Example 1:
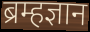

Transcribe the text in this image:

ब्रम्हज्ञान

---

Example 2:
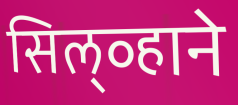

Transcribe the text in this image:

सिल्व्हाने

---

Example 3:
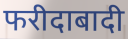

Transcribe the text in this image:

फरीदाबादी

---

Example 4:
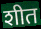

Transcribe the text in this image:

शीत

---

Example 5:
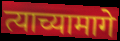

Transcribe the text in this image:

त्याच्यामागे